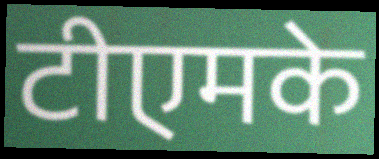
टीएमके